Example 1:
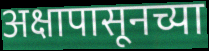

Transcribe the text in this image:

अक्षापासूनच्या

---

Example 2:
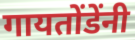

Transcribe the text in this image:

गायतोंडेंनी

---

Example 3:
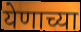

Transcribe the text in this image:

येणाच्या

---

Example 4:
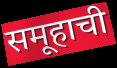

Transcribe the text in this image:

समूहाची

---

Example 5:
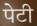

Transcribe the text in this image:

पेटी